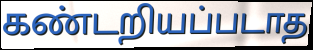
கண்டறியப்படாத